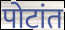
पोटांत